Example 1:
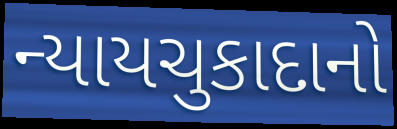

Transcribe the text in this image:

ન્યાયચુકાદાનો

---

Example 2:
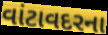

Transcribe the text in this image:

વાંટાવદરના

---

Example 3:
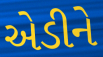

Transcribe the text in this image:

એડીને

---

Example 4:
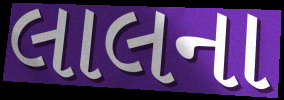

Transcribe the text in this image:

લાલના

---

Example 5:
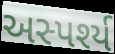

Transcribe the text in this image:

અસ્પર્શ્ય